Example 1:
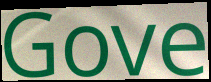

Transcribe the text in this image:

Gove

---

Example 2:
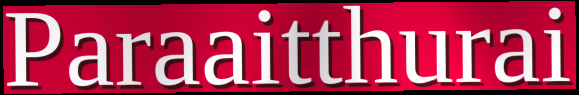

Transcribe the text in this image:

Paraaitthurai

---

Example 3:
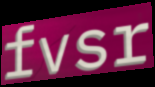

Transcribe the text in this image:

fvsr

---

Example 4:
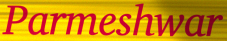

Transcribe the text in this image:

Parmeshwar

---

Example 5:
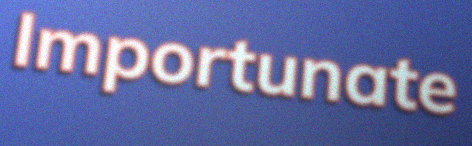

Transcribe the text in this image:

Importunate